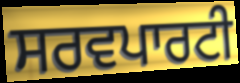
ਸਰਵਪਾਰਟੀ